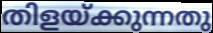
തിളയ്ക്കുന്നതു